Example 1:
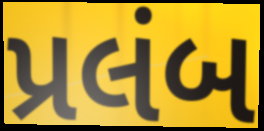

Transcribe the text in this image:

પ્રલંબ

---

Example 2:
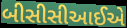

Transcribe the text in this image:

બીસીસીઆઈએ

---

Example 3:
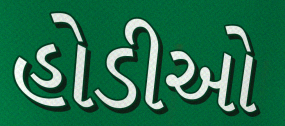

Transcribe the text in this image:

હોડીઓ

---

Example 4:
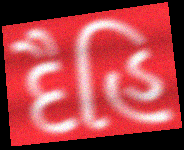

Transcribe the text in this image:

દૈહિ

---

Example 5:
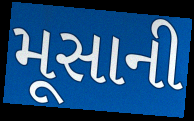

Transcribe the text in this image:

મૂસાની